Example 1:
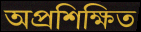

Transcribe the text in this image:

অপ্রশিক্ষিত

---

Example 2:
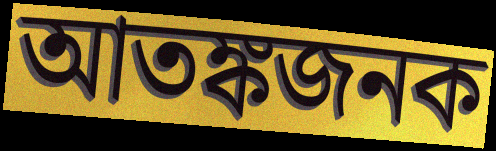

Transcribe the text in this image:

আতঙ্কজনক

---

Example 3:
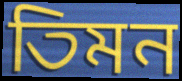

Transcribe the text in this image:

তিমন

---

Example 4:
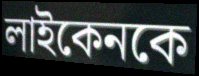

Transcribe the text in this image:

লাইকেনকে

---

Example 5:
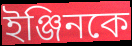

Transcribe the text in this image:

ইঞ্জিনকে